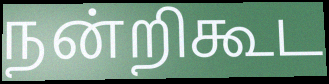
நன்றிகூட